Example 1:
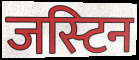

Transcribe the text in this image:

जस्‍टिन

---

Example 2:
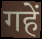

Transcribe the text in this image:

गहें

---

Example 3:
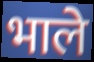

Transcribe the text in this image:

भाले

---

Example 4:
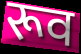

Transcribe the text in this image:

रूव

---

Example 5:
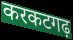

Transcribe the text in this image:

करकटगढ़